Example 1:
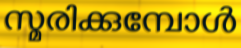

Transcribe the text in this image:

സ്മരിക്കുമ്പോൾ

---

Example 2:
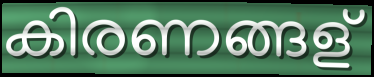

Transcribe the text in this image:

കിരണങ്ങള്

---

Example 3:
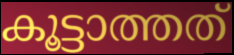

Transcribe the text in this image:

കൂട്ടാത്തത്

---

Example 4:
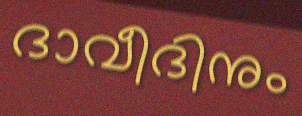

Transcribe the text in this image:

ദാവീദിനും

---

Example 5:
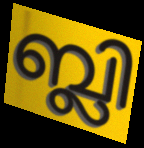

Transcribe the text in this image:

ബ്ലി